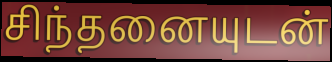
சிந்தனையுடன்